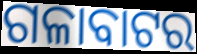
ଗଳାବାଟର